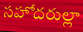
సహోదరుల్లా